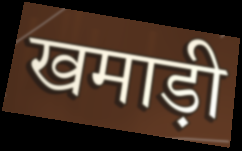
खमाड़ी